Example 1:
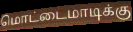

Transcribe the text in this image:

மொட்டைமாடிக்கு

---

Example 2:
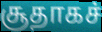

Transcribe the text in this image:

சூதாகச்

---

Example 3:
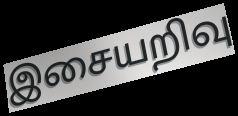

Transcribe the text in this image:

இசையறிவு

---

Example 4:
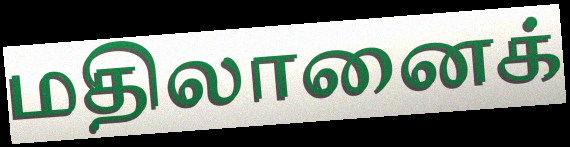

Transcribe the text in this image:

மதிலானைக்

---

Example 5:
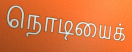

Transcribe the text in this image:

நொடியைக்